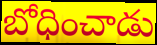
బోధించాడు